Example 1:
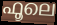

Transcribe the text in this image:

ഫൂലെ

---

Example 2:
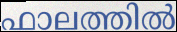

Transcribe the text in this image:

ഫാലത്തിൽ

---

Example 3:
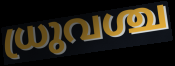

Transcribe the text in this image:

ധ്രുവശ്ച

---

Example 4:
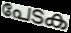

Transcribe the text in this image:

പേടക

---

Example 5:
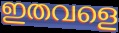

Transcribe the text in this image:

ഇതവളെ